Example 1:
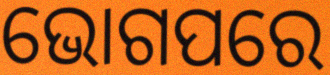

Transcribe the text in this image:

ଭୋଗପରେ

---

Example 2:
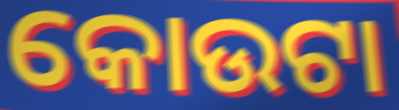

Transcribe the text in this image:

କୋଉଟା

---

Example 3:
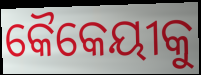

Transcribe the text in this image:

କୈକେୟୀକୁ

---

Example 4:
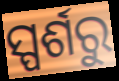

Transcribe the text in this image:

ସ୍ପର୍ଶରୁ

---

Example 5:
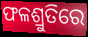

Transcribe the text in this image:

ଫଳଶ୍ରୁତିରେ